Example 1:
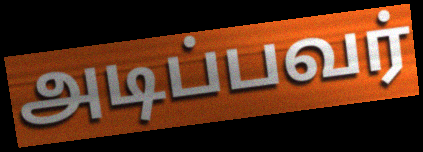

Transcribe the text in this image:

அடிப்பவர்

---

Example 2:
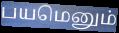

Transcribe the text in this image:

பயமெனும்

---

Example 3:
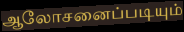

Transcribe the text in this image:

ஆலோசனைப்படியும்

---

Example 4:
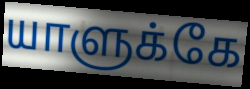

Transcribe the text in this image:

யாளுக்கே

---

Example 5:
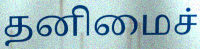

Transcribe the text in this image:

தனிமைச்